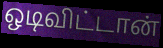
ஒடிவிட்டான்